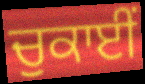
ਚੁਕਾਈਂ